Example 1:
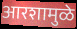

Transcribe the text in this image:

आरशामुळे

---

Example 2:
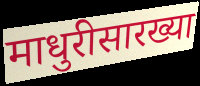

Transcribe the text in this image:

माधुरीसारख्या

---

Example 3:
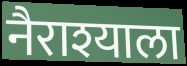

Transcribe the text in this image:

नैराश्याला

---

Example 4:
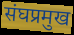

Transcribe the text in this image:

संघप्रमुख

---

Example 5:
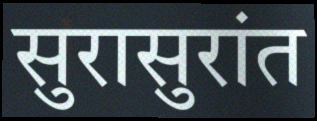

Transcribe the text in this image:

सुरासुरांत